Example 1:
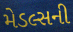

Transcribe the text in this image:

મેડલ્સની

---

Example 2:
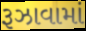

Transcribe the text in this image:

રૂઝાવામાં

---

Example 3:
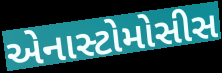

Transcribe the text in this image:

એનાસ્ટોમોસીસ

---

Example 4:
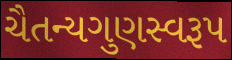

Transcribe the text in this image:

ચૈતન્યગુણસ્વરૂપ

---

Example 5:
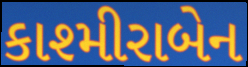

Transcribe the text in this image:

કાશ્મીરાબેન